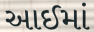
આઈમાં